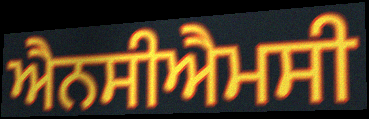
ਐਨਸੀਐਮਸੀ